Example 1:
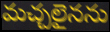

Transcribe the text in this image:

మచ్చలైనను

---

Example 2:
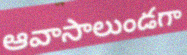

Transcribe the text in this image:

ఆవాసాలుండగా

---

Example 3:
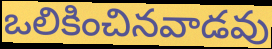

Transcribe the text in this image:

ఒలికించినవాడవు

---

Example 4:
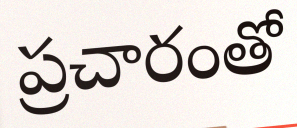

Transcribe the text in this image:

ప్రచారంతో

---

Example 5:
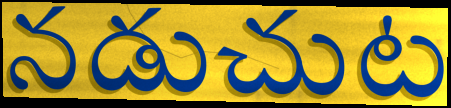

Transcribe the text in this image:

నడుచుట